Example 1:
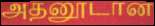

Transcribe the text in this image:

அதனூடான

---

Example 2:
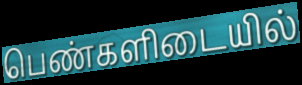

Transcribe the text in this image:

பெண்களிடையில்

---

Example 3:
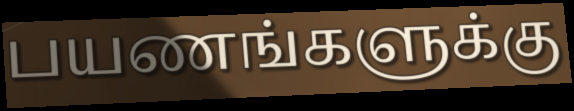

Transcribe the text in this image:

பயணங்களுக்கு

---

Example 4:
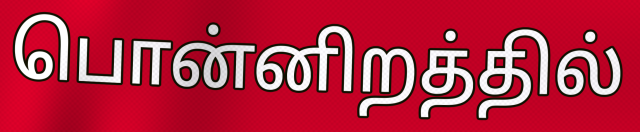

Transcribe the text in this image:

பொன்னிறத்தில்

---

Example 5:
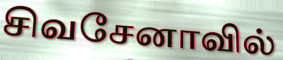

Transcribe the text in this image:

சிவசேனாவில்